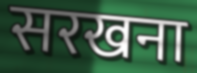
सरखना